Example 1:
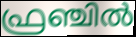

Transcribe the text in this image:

ഫ്രഞ്ചിൽ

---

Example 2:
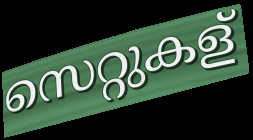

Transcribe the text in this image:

സെറ്റുകള്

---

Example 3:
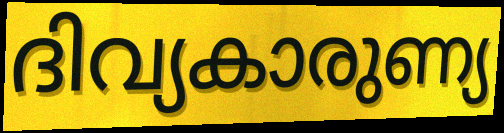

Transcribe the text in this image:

ദിവ്യകാരുണ്യ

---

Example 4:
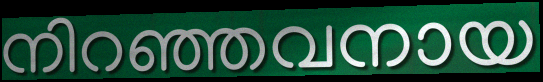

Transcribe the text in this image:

നിറഞ്ഞവനായ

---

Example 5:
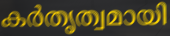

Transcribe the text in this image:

കർതൃത്വമായി